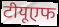
टीयूएफ